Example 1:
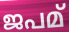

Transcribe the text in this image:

ജപമ്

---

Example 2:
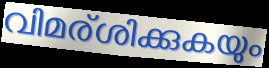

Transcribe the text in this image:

വിമര്ശിക്കുകയും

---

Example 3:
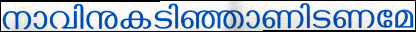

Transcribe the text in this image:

നാവിനുകടിഞ്ഞാണിടണമേ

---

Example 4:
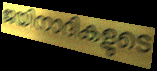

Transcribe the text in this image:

ജയിനാദികളുടെ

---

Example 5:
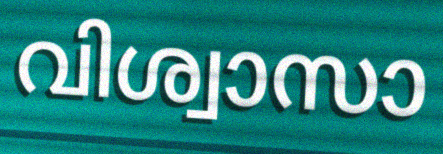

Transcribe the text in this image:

വിശ്വാസാ